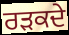
ਰੜਕਦੇ